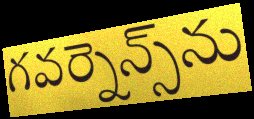
గవర్నెన్స్‌ను